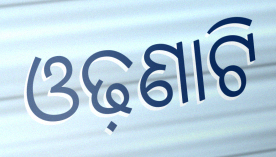
ଓଢ଼ଣାଟି